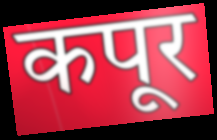
कपूर